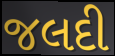
જલદી